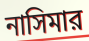
নাসিমার